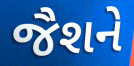
જૈશને